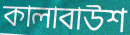
কালাবাউশ